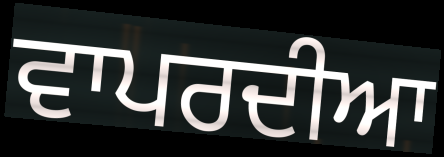
ਵਾਪਰਦੀਆ